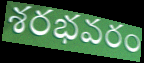
శరభవరం